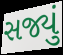
સજ્યું